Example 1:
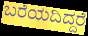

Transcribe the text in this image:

ಬರೆಯದಿದ್ದರೆ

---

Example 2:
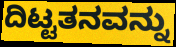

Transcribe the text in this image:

ದಿಟ್ಟತನವನ್ನು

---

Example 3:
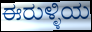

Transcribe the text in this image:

ಈರುಳ್ಳಿಯ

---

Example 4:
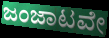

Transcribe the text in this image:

ಜಂಜಾಟವೇ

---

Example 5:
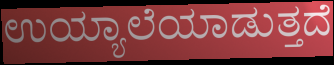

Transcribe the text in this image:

ಉಯ್ಯಾಲೆಯಾಡುತ್ತದೆ